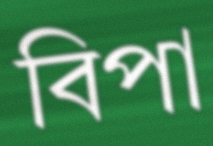
বিপা